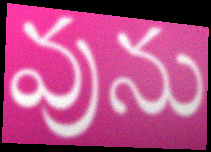
వును